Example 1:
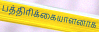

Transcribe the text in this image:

பத்திரிக்கையாளனாக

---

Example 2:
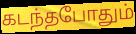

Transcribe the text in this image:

கடந்தபோதும்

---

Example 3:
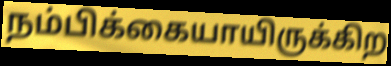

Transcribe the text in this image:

நம்பிக்கையாயிருக்கிற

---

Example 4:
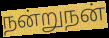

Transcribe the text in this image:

நன்றுநன்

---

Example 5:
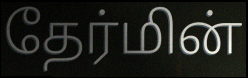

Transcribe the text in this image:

தேர்மின்